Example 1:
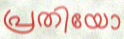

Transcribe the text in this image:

പ്രതിയോ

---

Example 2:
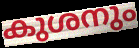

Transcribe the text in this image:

കുശനും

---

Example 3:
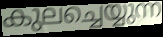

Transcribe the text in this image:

കുലച്ചെയ്യുന്ന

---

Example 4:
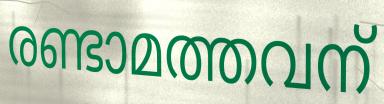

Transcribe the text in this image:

രണ്ടാമത്തവന്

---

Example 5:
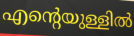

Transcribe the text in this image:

എന്റെയുള്ളിൽ